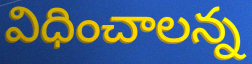
విధించాలన్న